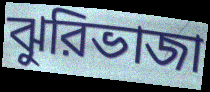
ঝুরিভাজা